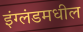
इंग्‍लंडमधील